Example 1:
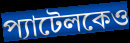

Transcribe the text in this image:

প্যাটেলকেও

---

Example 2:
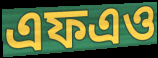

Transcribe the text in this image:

এফএও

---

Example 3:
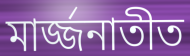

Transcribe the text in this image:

মার্জ্জনাতীত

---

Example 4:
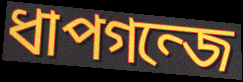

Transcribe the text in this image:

ধাপগন্জে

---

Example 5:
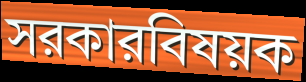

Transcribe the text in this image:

সরকারবিষয়ক